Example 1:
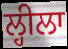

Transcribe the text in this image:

ਲ੍ਹੀਲਾ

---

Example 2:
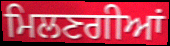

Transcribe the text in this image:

ਮਿਲਣਗੀਆਂ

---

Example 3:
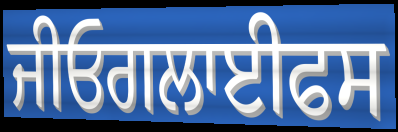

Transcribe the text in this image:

ਜੀਓਗਲਾਈਫਸ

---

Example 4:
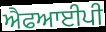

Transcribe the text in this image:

ਐਫਆਈਪੀ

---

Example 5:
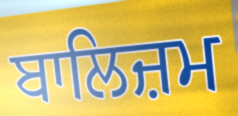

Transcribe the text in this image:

ਬਾਲਿਜ਼ਮ